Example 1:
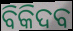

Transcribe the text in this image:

ବିକିଦବ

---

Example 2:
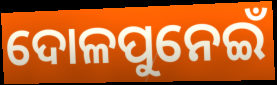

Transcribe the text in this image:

ଦୋଳପୁନେଇଁ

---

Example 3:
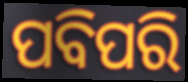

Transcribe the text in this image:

ପବିପରି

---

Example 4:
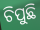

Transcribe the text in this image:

ଚିପୁଛି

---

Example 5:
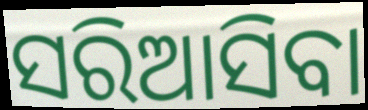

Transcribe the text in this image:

ସରିଆସିବା